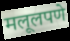
मलूलपणे